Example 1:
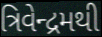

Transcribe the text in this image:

ત્રિવેન્દ્રમથી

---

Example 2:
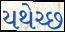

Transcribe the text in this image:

યથેચ્છ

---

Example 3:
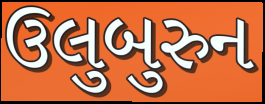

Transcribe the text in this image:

ઉલુબુરુન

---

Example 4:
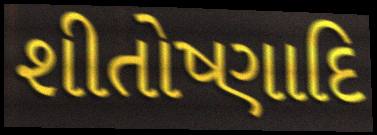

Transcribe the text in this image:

શીતોષ્ણાદિ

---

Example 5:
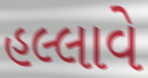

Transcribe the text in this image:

હલ્લાવે